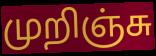
முறிஞ்சு